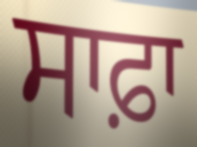
ਸਾਫ਼ਾ